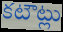
కటౌట్లు